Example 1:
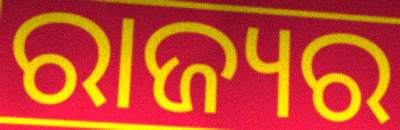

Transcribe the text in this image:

ରାଜ୍ୟର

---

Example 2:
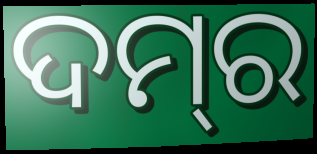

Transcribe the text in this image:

ଦମ୍‌ର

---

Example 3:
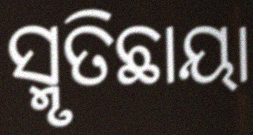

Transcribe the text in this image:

ସ୍ମୃତିଛାୟା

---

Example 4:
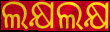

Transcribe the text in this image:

ଲକ୍ଷଲକ୍ଷ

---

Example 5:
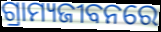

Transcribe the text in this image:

ଗ୍ରାମ୍ୟଜୀବନରେ